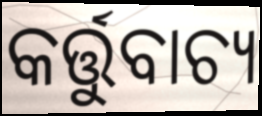
କର୍ତ୍ତୁବାଚ୍ୟ